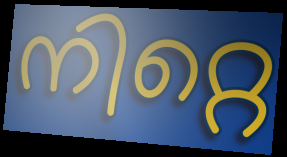
നിറ്റെ